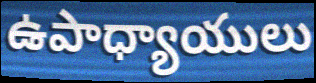
ఉపాధ్యాయులు